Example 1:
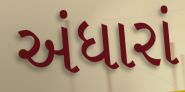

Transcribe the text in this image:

અંધારાં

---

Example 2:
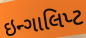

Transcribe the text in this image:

ઇન્ગાલિપ્ટ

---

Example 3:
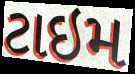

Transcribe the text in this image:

ટાઇમ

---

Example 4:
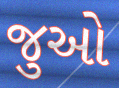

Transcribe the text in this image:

જુઓ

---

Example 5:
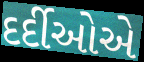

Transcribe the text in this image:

દર્દીઓએ